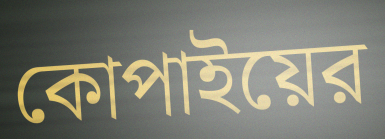
কোপাইয়ের